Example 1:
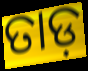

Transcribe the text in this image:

ତାଡ଼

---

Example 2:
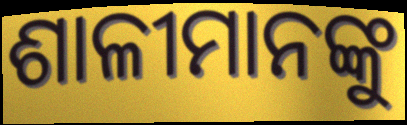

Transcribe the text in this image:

ଶାଳୀମାନଙ୍କୁ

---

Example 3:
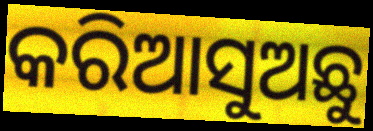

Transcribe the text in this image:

କରିଆସୁଅଛୁ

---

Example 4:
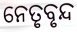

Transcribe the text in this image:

ନେତୃବୃନ୍ଦ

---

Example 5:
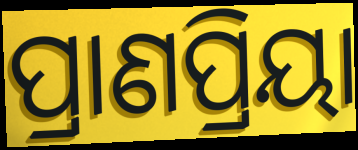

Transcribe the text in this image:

ପ୍ରାଣପ୍ରିୟା